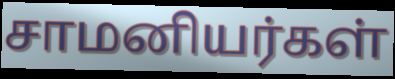
சாமனியர்கள்